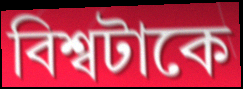
বিশ্বটাকে